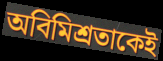
অবিমিশ্রতাকেই